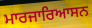
ਮਾਰਜਾਰਿਆਸਨ